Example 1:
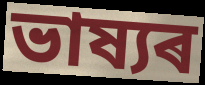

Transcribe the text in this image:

ভাষ্যৰ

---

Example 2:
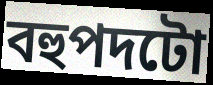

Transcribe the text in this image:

বহুপদটো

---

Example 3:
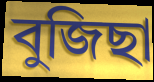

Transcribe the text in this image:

বুজিছা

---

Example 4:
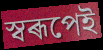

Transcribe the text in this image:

স্বৰূপেই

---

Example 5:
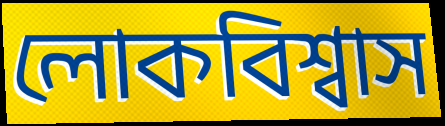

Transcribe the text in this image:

লোকবিশ্বাস